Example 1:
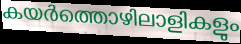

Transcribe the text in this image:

കയർത്തൊഴിലാളികളും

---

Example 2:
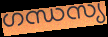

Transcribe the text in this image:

ഗന്ധസ്യ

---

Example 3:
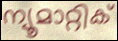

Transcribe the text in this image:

ന്യൂമാറ്റിക്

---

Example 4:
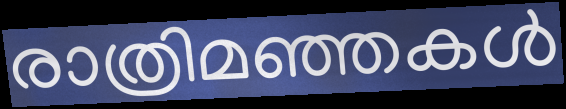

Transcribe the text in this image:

രാത്രിമഞ്ഞകൾ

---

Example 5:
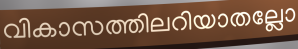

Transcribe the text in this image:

വികാസത്തിലറിയാതല്ലോ